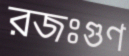
রজঃগুণ